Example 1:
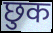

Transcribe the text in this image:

छुक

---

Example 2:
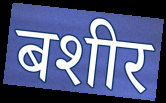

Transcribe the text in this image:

बशीर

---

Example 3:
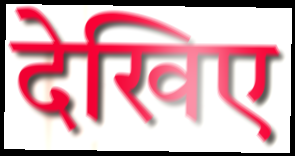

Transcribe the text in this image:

देखिए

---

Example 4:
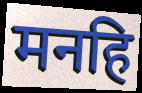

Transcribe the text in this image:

मनहि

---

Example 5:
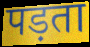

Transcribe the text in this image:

पड़ता